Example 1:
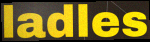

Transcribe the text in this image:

ladles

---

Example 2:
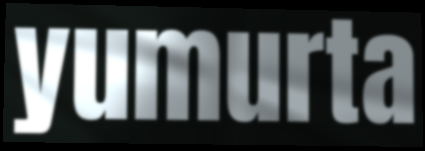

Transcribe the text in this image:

yumurta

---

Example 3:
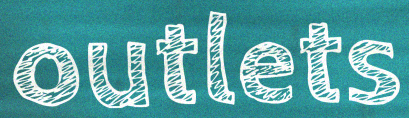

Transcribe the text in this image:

outlets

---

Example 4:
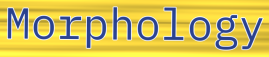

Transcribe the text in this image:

Morphology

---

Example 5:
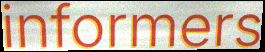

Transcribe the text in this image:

informers